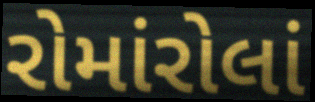
રોમાંરોલાં